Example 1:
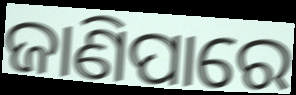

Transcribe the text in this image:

ଜାଣିପାରେ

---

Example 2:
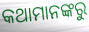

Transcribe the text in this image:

କଥାମାନଙ୍କରୁ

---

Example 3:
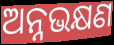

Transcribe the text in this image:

ଅନ୍ନଭକ୍ଷଣ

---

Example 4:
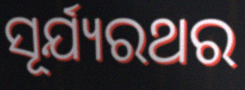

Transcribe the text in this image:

ସୂର୍ଯ୍ୟରଥର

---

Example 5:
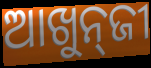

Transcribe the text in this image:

ଆଖୁନ୍‍ଜୀ